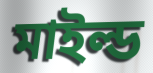
মাইল্ড